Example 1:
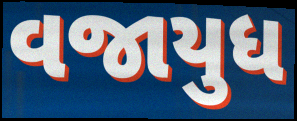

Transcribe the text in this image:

વજાયુધ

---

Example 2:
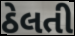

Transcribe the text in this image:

ઠેલતી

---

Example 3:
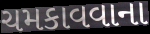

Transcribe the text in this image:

ચમકાવવાના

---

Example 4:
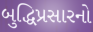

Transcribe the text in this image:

બુદ્ધિપ્રસારનો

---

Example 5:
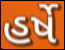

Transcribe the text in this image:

હર્ષે